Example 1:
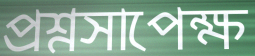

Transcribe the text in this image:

প্রশ্নসাপেক্ষ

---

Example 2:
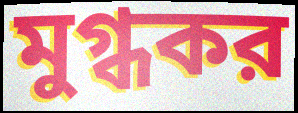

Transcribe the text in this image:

মুগ্ধকর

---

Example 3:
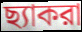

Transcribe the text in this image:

ছ্যাকরা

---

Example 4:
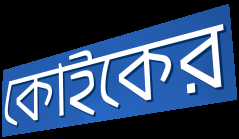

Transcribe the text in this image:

কোইকের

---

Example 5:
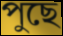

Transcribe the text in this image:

পুছে